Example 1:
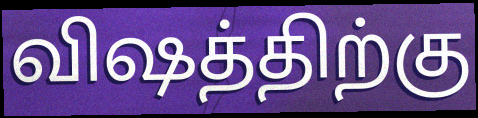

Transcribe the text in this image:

விஷத்திற்கு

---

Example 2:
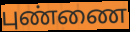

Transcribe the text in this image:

புண்ணை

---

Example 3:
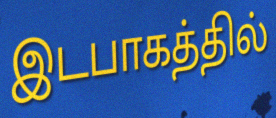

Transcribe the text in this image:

இடபாகத்தில்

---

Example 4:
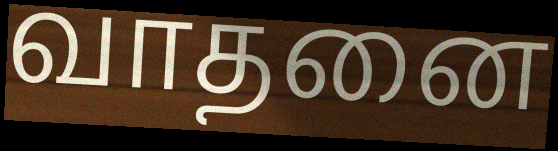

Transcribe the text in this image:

வாதனை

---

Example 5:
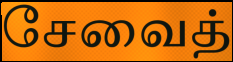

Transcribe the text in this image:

சேவைத்